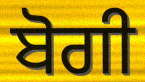
ਬੋਗੀ